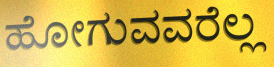
ಹೋಗುವವರೆಲ್ಲ